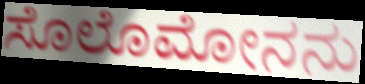
ಸೊಲೊಮೋನನು